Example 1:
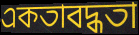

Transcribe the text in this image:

একতাবদ্ধতা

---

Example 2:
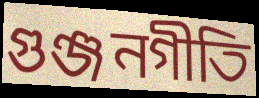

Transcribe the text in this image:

গুঞ্জনগীতি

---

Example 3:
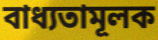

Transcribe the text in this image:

বাধ্যতামূলক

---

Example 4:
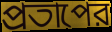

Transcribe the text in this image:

প্রতাপের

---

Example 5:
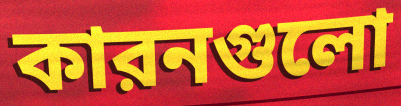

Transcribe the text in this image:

কারনগুলো